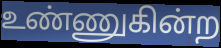
உண்ணுகின்ற